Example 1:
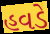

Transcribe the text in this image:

હવડે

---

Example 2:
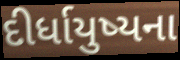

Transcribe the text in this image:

દીર્ધાયુષ્યના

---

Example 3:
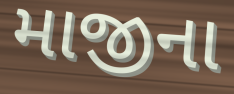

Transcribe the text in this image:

માજીના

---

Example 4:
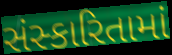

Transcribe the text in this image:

સંસ્કારિતામાં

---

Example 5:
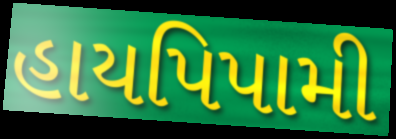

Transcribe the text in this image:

હાયપિપામી